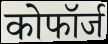
कोफॉर्ज